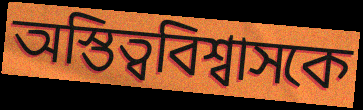
অস্তিত্ববিশ্বাসকে